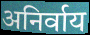
अनिर्वाय